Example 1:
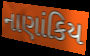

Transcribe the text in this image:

નાણાંકિય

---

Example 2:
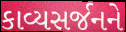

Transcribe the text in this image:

કાવ્યસર્જનને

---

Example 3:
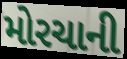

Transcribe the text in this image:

મોરચાની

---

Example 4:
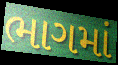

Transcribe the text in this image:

ભાગમાં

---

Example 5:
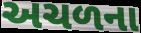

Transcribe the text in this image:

અચળના